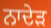
ਨਾਦੇੜ